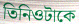
তিনিওটাকে